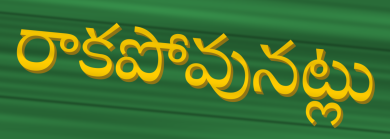
రాకపోవునట్లు